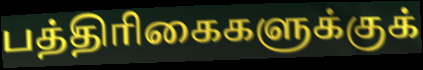
பத்திரிகைகளுக்குக்